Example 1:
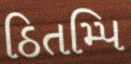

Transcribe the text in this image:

ઠિતમ્પિ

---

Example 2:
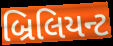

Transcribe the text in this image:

બ્રિલિયન્ટ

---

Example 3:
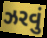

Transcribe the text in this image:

ઝરવું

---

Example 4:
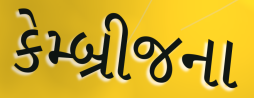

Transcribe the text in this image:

કેમ્બ્રીજના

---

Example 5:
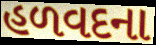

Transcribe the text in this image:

હળવદના